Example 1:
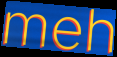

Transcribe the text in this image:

meh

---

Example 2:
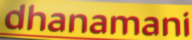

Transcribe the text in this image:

dhanamani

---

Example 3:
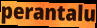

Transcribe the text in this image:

perantalu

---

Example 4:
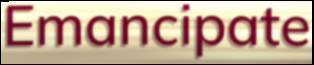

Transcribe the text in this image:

Emancipate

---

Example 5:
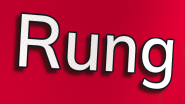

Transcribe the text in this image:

Rung